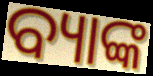
ବ୍ୟାଙ୍କ